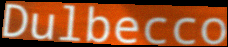
Dulbecco